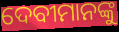
ଦେବୀମାନଙ୍କୁ